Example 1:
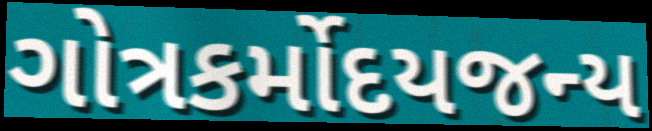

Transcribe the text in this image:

ગોત્રકર્મોદયજન્ય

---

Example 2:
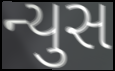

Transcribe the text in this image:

ન્યુસ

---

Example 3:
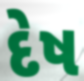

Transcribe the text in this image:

દેષ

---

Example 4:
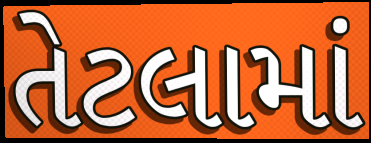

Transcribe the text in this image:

તેટલામાં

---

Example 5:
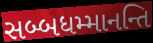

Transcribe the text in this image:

સબ્બધમ્માનન્તિ